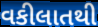
વકીલાતથી